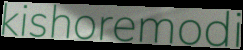
kishoremodi